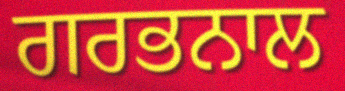
ਗਰਭਨਾਲ